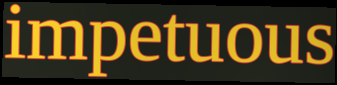
impetuous